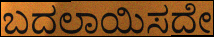
ಬದಲಾಯಿಸದೇ